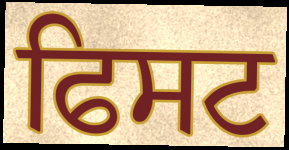
ਫਿਸਟ